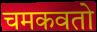
चमकवतो